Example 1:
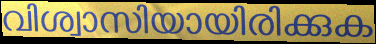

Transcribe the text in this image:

വിശ്വാസിയായിരിക്കുക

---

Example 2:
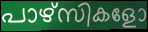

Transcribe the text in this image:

പാഴ്സികളോ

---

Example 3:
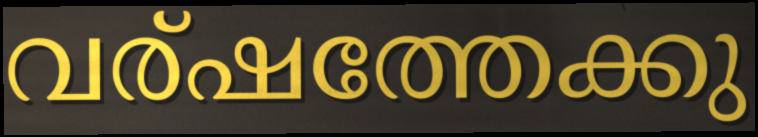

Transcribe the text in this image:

വര്ഷത്തേക്കു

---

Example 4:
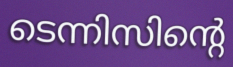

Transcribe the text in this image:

ടെന്നിസിന്റെ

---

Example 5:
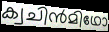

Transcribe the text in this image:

ക്വചിൻമിഥോ